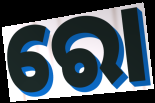
ରୋ